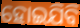
ହୋଇଯିବି